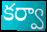
కర్వా